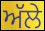
ਅੱਲੇ